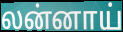
லன்னாய்